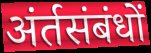
अंर्तसंबंधों